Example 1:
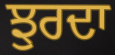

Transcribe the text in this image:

ਝੁਰਦਾ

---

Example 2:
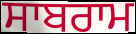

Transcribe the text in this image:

ਸਾਬਰਾਮ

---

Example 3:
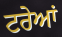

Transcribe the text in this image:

ਟਰੇਆਂ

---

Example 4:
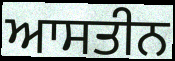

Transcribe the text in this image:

ਆਸਤੀਨ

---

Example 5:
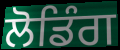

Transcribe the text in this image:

ਲੋਡਿੰਗ